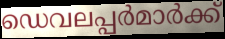
ഡെവലപ്പർമാർക്ക്